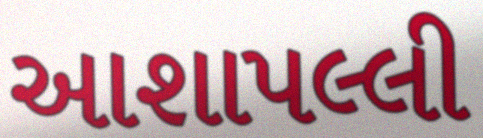
આશાપલ્લી